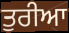
ਤੁਰੀਆ